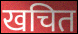
खचित